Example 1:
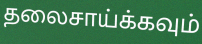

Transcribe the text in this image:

தலைசாய்க்கவும்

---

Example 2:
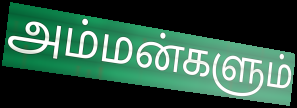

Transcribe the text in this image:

அம்மன்களும்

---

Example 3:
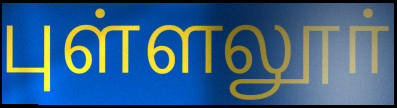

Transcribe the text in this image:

புள்ளலூர்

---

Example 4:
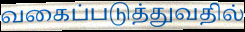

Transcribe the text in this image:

வகைப்படுத்துவதில்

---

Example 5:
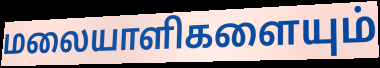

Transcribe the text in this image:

மலையாளிகளையும்